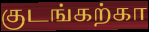
குடங்கற்கா